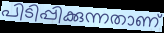
പിടിപ്പിക്കുന്നതാണ്